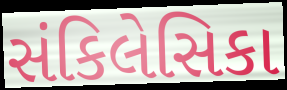
સંકિલેસિકા